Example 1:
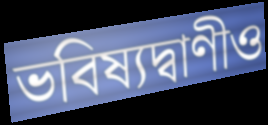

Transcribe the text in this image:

ভবিষ্যদ্বাণীও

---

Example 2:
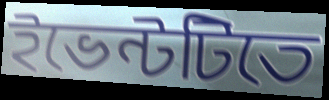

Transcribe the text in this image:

ইভেন্টটিতে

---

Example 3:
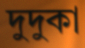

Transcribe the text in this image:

দুদুকা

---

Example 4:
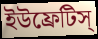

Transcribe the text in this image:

ইউফ্রেটিস্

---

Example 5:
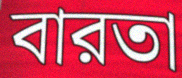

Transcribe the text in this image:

বারতা